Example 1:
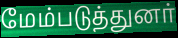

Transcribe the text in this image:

மேம்படுத்துனர்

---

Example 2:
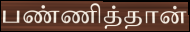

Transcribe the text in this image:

பண்ணித்தான்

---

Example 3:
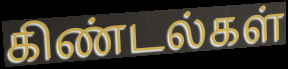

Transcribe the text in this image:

கிண்டல்கள்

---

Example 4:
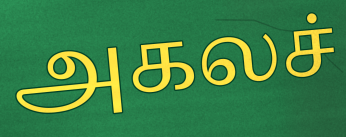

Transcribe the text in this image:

அகலச்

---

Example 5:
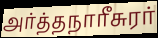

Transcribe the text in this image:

அர்த்தநாரீசுரர்